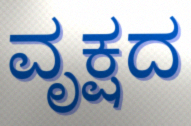
ವೃಕ್ಷದ